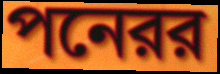
পনেরর